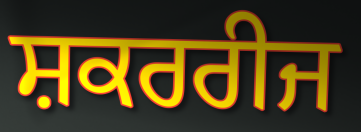
ਸ਼ਕਰਰੀਜ